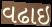
વઢાઇ